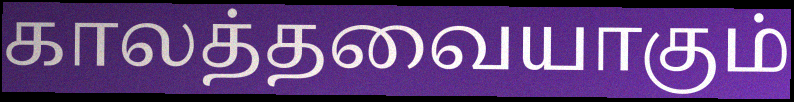
காலத்தவையாகும்